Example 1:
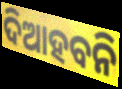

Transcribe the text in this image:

ଦିଆହବନି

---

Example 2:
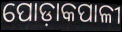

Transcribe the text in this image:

ପୋଡ଼ାକପାଳୀ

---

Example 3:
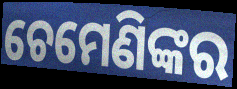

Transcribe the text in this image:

ଚେମେଣିଙ୍କର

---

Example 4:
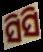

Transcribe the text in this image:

ସିସି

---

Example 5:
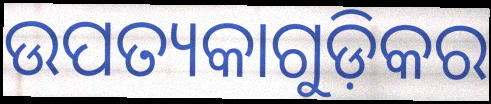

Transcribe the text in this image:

ଉପତ୍ୟକାଗୁଡ଼ିକର